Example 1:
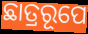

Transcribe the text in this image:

ଛାତ୍ରରୂପେ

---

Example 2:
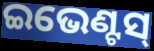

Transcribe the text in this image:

ଇଭେଣ୍ଟସ୍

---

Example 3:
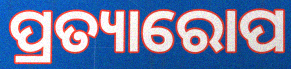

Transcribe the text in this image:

ପ୍ରତ୍ୟାରୋପ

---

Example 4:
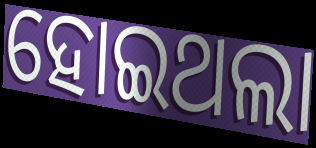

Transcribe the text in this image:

ହୋଇଥଲା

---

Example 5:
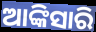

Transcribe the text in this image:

ଆଙ୍କିସାରି